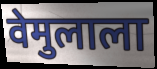
वेमुलाला